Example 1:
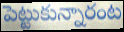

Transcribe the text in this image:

పెట్టుకున్నారంట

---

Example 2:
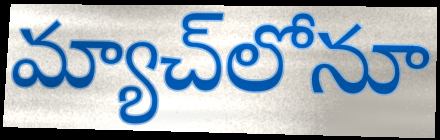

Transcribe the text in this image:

మ్యాచ్‌లోనూ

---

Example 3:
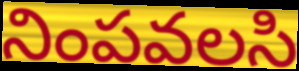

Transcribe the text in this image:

నింపవలసి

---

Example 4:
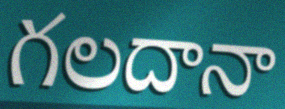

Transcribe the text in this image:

గలదానా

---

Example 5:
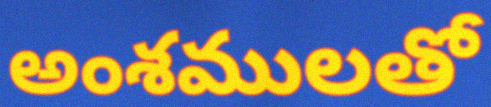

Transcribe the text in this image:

అంశములతో